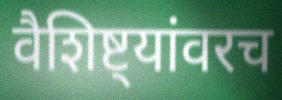
वैशिष्ट्यांवरच